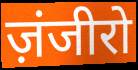
ज़ंजीरो